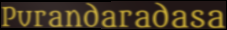
Purandaradasa